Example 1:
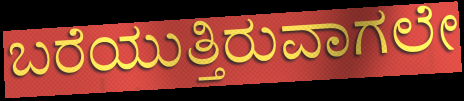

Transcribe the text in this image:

ಬರೆಯುತ್ತಿರುವಾಗಲೇ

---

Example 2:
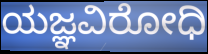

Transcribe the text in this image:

ಯಜ್ಞವಿರೋಧಿ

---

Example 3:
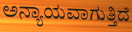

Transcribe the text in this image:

ಅನ್ಯಾಯವಾಗುತ್ತಿದೆ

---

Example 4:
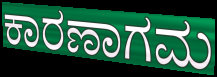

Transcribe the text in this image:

ಕಾರಣಾಗಮ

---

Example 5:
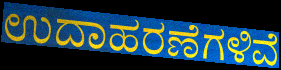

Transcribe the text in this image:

ಉದಾಹರಣೆಗಳಿವೆ